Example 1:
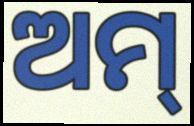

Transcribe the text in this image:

ଅମ୍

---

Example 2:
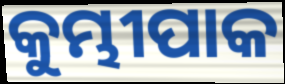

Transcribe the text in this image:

କୁମ୍ଭୀପାକ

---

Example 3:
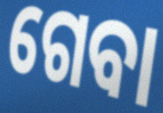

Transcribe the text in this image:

ଗେବା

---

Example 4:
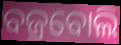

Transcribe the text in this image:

ବଜ୍ରବୋଲି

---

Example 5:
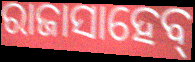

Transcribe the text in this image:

ରାଜାସାହେବ୍